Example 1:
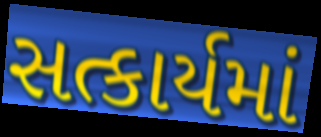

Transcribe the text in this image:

સત્કાર્યમાં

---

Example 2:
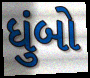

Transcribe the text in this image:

ધુંબો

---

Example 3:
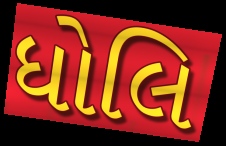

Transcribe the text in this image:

ધોલિ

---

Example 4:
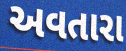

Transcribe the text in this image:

અવતારા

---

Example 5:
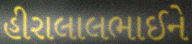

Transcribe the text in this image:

હીરાલાલભાઈને